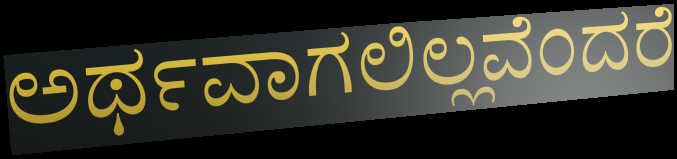
ಅರ್ಥವಾಗಲಿಲ್ಲವೆಂದರೆ